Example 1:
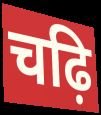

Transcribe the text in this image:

चढ़ि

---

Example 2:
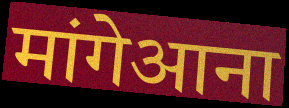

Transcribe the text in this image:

मांगेआना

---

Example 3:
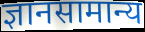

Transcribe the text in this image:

ज्ञानसामान्य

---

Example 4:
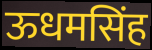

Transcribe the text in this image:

ऊधमसिंह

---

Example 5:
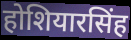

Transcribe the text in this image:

होशियारसिंह